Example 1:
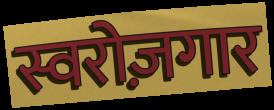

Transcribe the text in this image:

स्वरोज़गार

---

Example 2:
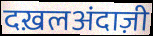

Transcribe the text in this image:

दख़लअंदाज़ी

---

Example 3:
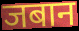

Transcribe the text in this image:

जबान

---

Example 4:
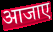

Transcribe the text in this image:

आजाए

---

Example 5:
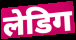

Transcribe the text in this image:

लेडिग